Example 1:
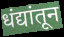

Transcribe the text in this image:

धंद्यांतून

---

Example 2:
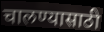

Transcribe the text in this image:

चालण्यासाठी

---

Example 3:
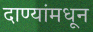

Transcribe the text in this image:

दाण्यांमधून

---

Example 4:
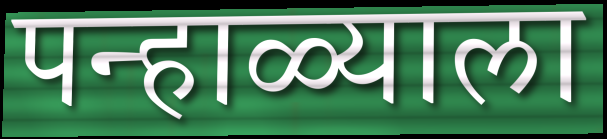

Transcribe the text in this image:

पन्हाळ्याला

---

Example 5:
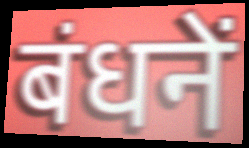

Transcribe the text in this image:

बंधनें